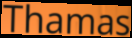
Thamas